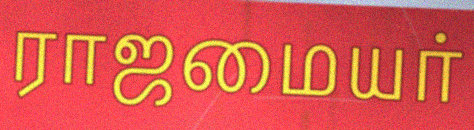
ராஜமையர்